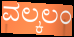
ವಲ್ಕಲಂ